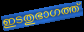
ഇടതുഭാഗത്ത്